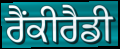
ਰੈਂਕੀਰੈਡੀ